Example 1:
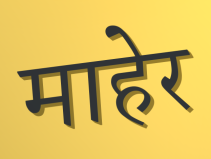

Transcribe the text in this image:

माहेर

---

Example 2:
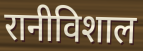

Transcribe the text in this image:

रानीविशाल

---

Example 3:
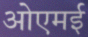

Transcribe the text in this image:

ओएमई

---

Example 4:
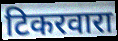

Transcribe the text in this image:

टिकरवारा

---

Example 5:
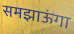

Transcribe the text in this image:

समझाऊंगा